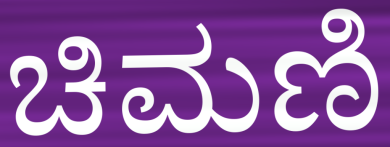
ಚಿಮಣಿ